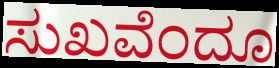
ಸುಖವೆಂದೂ